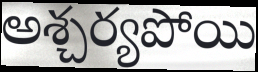
అశ్చర్యపోయి